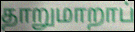
தாறுமாறாப்